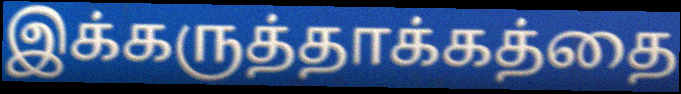
இக்கருத்தாக்கத்தை